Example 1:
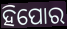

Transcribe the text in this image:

ହିପୋର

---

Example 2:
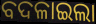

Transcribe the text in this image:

ବଦଳାଇଲା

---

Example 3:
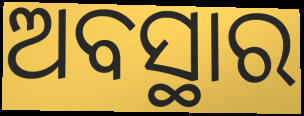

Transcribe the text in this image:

ଅବସ୍ଥାର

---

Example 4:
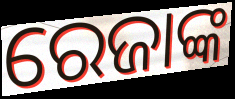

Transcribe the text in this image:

ରେଜାଙ୍କ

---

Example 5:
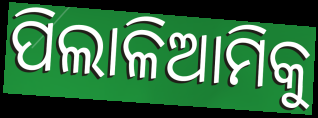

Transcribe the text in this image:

ପିଲାଳିଆମିକୁ